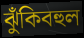
ঝুঁকিবহুল